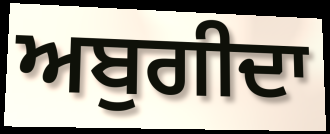
ਅਬੁਗੀਦਾ